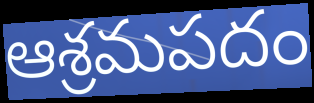
ఆశ్రమపదం